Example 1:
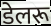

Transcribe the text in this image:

डेलरू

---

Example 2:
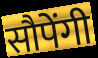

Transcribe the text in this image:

सौपेंगी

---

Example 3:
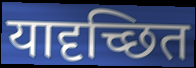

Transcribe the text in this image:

यादृच्छित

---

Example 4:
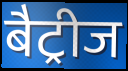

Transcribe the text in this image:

बैट्रीज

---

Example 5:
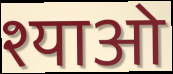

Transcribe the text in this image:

श्याओ